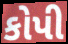
કોપી